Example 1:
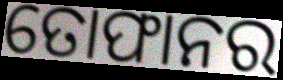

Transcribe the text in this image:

ତୋଫାନର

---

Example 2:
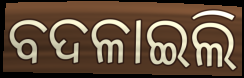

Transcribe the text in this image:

ବଦଳାଇଲି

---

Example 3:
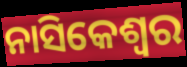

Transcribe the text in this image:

ନାସିକେଶ୍ୱର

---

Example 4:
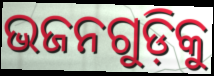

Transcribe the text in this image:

ଭଜନଗୁଡ଼ିକୁ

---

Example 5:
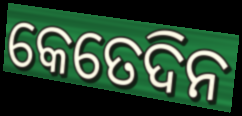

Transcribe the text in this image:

କେତେଦିନ